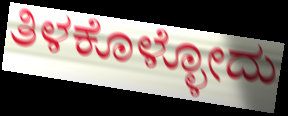
ತಿಳಕೊಳ್ಳೋದು